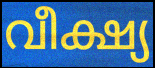
വീക്ഷ്യ